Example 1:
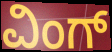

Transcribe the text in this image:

ವಿಂಗ್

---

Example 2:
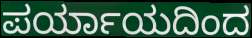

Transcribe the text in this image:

ಪರ್ಯಾಯದಿಂದ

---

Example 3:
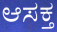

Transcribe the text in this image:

ಆಸಕ್ತ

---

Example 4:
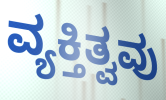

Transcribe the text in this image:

ವ್ಯಕ್ತಿತ್ವವು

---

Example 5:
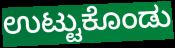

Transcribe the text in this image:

ಉಟ್ಟುಕೊಂಡು